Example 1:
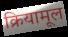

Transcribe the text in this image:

क्रियामूल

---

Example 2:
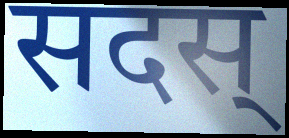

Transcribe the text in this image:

सदस्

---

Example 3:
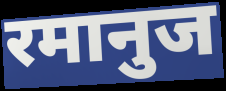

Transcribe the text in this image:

रमानुज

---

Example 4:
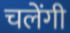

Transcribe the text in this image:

चलेंगी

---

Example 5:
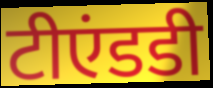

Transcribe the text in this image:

टीएंडडी